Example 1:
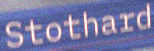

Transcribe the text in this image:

Stothard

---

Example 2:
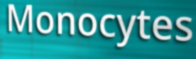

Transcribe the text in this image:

Monocytes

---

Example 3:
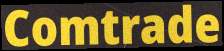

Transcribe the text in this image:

Comtrade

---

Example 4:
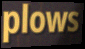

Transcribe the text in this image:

plows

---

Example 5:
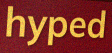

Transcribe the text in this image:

hyped